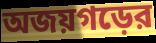
অজয়গড়ের